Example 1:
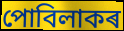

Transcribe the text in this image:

পোবিলাকৰ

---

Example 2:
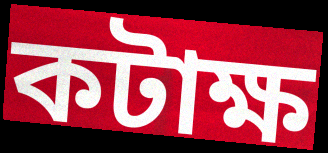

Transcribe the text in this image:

কটাক্ষ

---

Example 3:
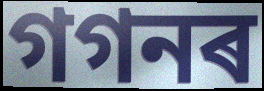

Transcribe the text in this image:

গগনৰ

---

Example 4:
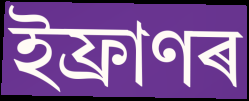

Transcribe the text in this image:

ইফ্ৰাণৰ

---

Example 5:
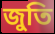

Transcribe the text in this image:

জুতি